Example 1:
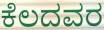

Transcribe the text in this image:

ಕೆಲದವರ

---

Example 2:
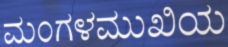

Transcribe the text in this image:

ಮಂಗಳಮುಖಿಯ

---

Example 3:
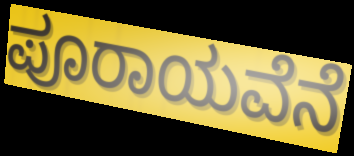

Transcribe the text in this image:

ಪೂರಾಯವೆನೆ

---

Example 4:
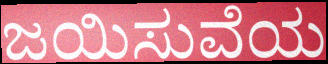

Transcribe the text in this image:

ಜಯಿಸುವೆಯ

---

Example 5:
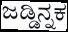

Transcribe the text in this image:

ಜಡ್ಡಿನ್ನಕ